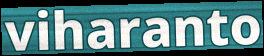
viharanto